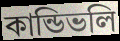
কান্ডিভলি